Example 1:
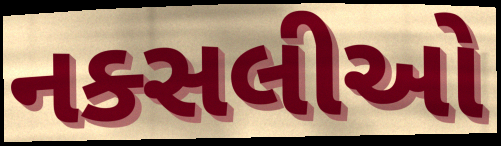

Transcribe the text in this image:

નક્સલીઓ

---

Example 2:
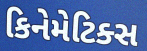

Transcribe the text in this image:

કિનેમેટિક્સ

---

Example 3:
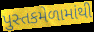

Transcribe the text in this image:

પુસ્તકમેળામાંથી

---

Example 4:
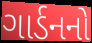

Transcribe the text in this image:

ગાર્ડનનો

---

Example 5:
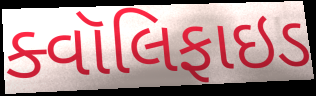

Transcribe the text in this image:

ક્વૉલિફાઇડ